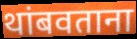
थांबवताना